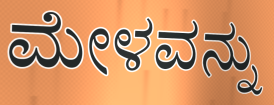
ಮೇಳವನ್ನು